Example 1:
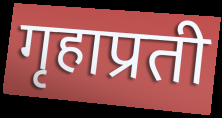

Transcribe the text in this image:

गृहाप्रती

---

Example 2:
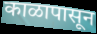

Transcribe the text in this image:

काळापासून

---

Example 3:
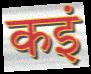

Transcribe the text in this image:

कइं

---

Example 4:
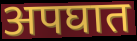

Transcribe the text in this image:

अपघात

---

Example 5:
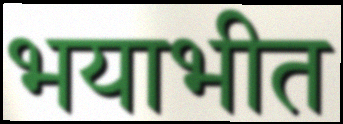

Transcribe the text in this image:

भयाभीत